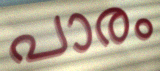
പാരം